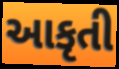
આકૃતી